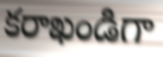
కరాఖండిగా